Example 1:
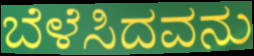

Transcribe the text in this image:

ಬೆಳೆಸಿದವನು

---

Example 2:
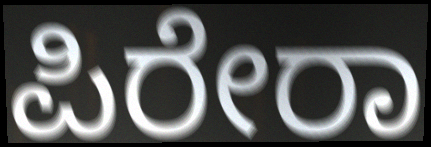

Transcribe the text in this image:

ಪಿರೇರಾ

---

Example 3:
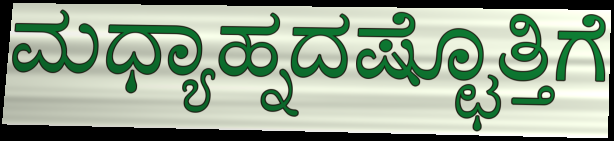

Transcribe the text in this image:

ಮಧ್ಯಾಹ್ನದಷ್ಟೊತ್ತಿಗೆ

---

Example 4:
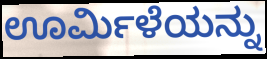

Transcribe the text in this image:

ಊರ್ಮಿಳೆಯನ್ನು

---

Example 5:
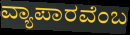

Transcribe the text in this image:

ವ್ಯಾಪಾರವೆಂಬ